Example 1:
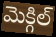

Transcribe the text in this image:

మెక్గిల్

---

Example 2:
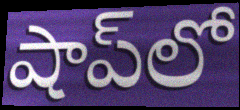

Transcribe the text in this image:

షాప్‌లో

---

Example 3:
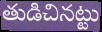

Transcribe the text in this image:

తుడిచినట్టు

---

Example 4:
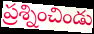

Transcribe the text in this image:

ప్రశ్నించిండు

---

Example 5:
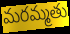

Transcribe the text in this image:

మరమ్మతు